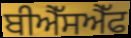
ਬੀਐੱਸਐੱਫ